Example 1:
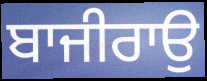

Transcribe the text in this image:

ਬਾਜੀਰਾਉ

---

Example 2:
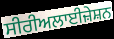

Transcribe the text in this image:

ਸੀਰੀਅਲਾਈਜ਼ੇਸ਼ਨ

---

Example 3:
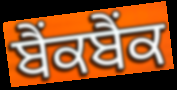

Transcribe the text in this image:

ਬੈਂਕਬੈਂਕ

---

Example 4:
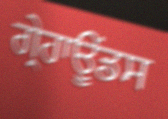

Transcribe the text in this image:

ਗ੍ਰੇਹਾਊਂਡਸ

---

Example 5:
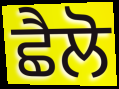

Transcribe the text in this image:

ਛੈਲੋ